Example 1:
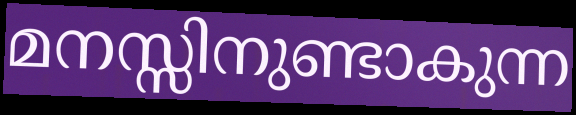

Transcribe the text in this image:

മനസ്സിനുണ്ടാകുന്ന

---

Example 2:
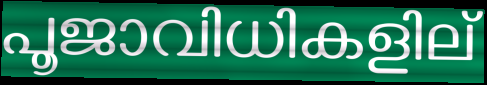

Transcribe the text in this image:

പൂജാവിധികളില്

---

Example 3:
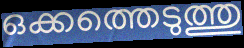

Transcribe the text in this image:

ഒക്കത്തെടുത്തു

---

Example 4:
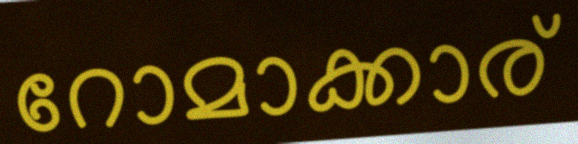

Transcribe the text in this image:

റോമാക്കാര്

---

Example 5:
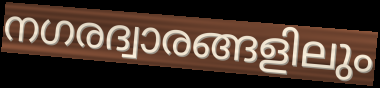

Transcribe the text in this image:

നഗരദ്വാരങ്ങളിലും